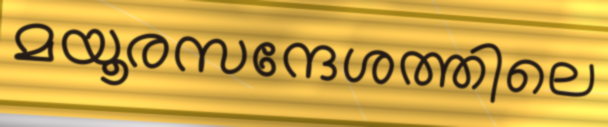
മയൂരസന്ദേശത്തിലെ